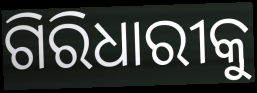
ଗିରିଧାରୀକୁ